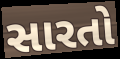
સારતો